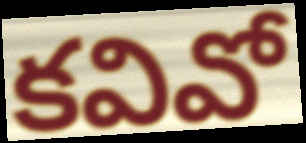
కవివో